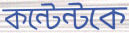
কন্টেন্টকে